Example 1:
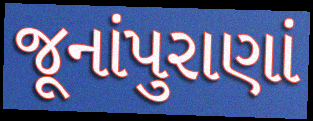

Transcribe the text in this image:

જૂનાંપુરાણાં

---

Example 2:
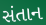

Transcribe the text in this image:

સંતાન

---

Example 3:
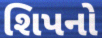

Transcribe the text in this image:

શિપનો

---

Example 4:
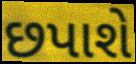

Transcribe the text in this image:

છપાશે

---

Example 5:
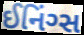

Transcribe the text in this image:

ઈનિંગ્સ